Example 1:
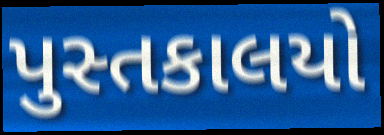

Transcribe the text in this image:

પુસ્તકાલયો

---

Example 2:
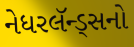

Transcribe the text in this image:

નેધરલૅન્ડ્સનો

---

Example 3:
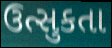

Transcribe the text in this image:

ઉત્સુકતા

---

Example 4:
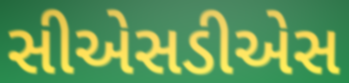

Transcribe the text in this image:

સીએસડીએસ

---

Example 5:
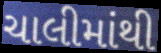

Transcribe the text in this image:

ચાલીમાંથી